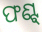
ଫଣ୍ଟ୍